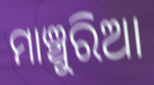
ମାଞ୍ଚୁରିଆ